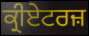
ਕ੍ਰੀਏਟਰਜ਼